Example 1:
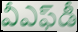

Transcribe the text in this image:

వీఎఫ్‌డీ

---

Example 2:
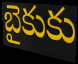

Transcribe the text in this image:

బైకుకు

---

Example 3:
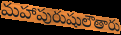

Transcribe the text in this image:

మహాపురుషులౌతారు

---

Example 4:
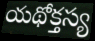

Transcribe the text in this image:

యథోక్తస్య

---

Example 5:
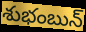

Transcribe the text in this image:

శుభంబున్